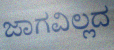
ಜಾಗವಿಲ್ಲದ